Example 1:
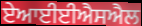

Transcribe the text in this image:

ਏਆਈਈਐਸਐਲ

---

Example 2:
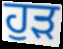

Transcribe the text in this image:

ਹੁੜ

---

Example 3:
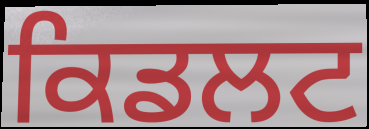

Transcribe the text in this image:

ਕਿਡਲਟ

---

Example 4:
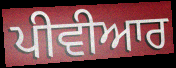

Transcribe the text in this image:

ਪੀਵੀਆਰ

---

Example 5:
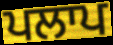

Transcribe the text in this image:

ਪਲਾਪ